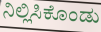
ನಿಲ್ಲಿಸಿಕೊಂಡು